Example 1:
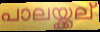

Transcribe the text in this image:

പാലയ്ക്കല്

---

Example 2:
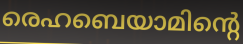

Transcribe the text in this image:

രെഹബെയാമിന്റെ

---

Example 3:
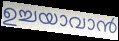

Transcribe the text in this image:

ഉച്ചയാവാൻ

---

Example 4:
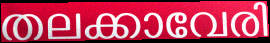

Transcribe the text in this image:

തലക്കാവേരി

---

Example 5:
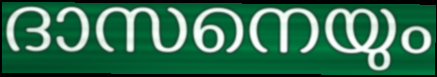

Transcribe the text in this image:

ദാസനെയും